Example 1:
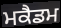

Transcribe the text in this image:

ਮਕੈਡਮ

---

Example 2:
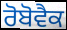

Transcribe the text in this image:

ਰੋਬੋਵੈਕ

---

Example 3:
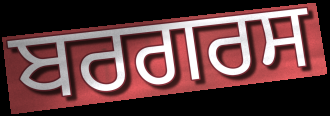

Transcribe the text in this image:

ਬਰਗਰਸ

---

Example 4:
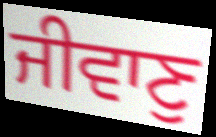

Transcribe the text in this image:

ਜੀਵਾਣੁ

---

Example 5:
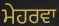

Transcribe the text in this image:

ਮੇਹਰਵਾ